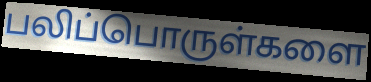
பலிப்பொருள்களை